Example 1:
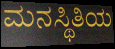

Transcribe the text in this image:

ಮನಸ್ಥಿತಿಯ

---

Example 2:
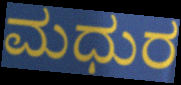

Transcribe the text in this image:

ಮಧುರ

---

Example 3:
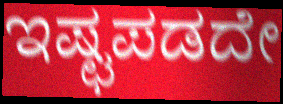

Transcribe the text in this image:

ಇಷ್ಟಪಡದೇ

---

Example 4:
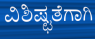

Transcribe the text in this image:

ವಿಶಿಷ್ಟತೆಗಾಗಿ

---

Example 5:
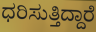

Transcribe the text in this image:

ಧರಿಸುತ್ತಿದ್ದಾರೆ